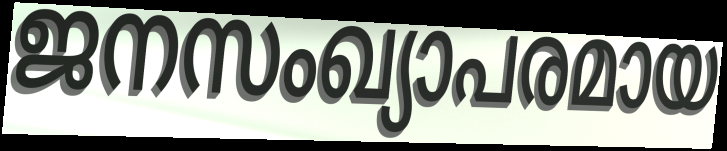
ജനസംഖ്യാപരമായ